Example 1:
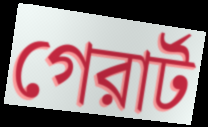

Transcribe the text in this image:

গেরার্ট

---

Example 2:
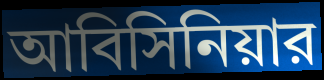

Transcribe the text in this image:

আবিসিনিয়ার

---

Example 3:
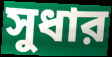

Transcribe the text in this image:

সুধার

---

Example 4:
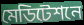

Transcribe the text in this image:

মেডিটেশনে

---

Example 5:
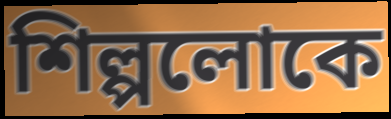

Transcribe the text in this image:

শিল্পলোকে